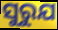
ସୁରୁଯ